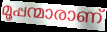
മൂപ്പന്മാരാണ്